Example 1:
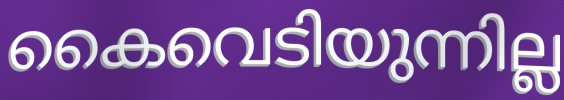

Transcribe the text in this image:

കൈവെടിയുന്നില്ല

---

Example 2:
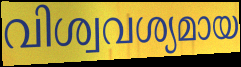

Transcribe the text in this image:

വിശ്വവശ്യമായ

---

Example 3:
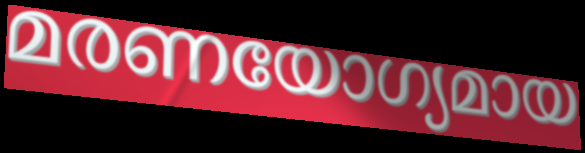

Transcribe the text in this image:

മരണയോഗ്യമായ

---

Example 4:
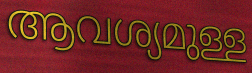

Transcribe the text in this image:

ആവശ്യമുള്ള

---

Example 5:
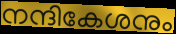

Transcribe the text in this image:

നന്ദികേശനും